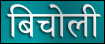
बिचोली